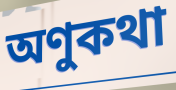
অণুকথা